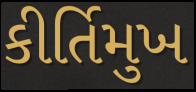
કીર્તિમુખ